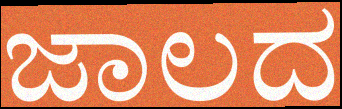
ಜಾಲದ